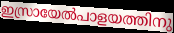
ഇസ്രായേൽപാളയത്തിനു